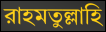
রাহমতুল্লাহি